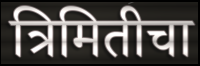
त्रिमितीचा